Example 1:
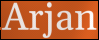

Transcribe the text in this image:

Arjan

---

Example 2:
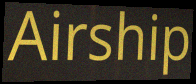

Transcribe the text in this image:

Airship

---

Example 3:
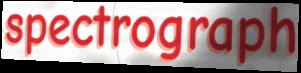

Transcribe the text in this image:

spectrograph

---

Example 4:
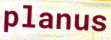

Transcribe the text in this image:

planus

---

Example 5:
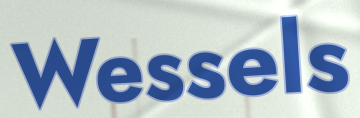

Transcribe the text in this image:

Wessels